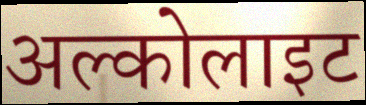
अल्कोलाइट